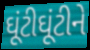
ઘૂંટીઘૂંટીને